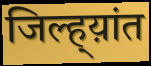
जिल्ह्य़ांत